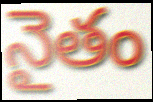
నైతం